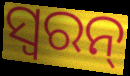
ସ୍ୱରନ୍